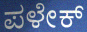
ಪಳೇಕ್